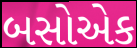
બસોએક